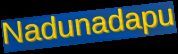
Nadunadapu